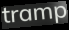
tramp